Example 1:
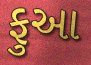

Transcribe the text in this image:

ફુઆ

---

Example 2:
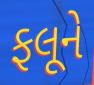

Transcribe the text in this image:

ફલૂને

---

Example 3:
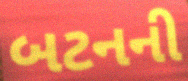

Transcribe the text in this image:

બટનની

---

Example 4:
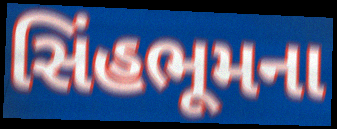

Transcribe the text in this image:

સિંહભૂમના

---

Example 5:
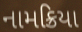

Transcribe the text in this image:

નામક્રિયા